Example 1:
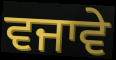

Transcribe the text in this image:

ਵਜਾਵੇ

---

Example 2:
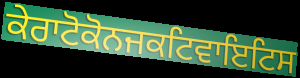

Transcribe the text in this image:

ਕੇਰਾਟੋਕੋਨਜਕਟਿਵਾਇਟਿਸ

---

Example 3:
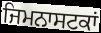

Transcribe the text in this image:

ਜਿਮਨਾਸਟਕਾਂ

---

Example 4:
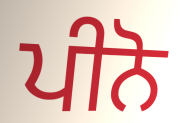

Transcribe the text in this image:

ਪੀਨੋ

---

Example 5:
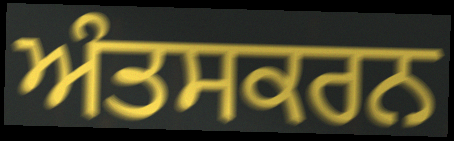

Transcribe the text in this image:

ਅੰਤਸਕਰਨ